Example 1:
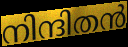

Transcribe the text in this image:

നിന്ദിതൻ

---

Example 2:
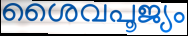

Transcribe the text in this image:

ശൈവപൂജ്യം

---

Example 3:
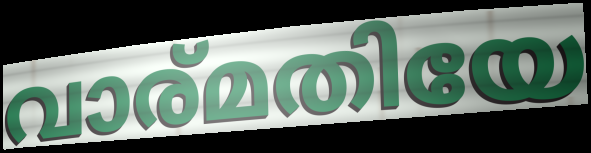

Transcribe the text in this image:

വാര്മതിയേ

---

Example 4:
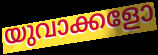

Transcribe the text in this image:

യുവാക്കളോ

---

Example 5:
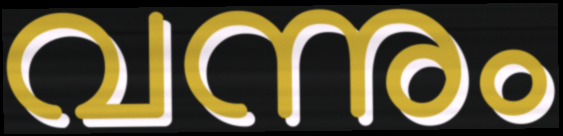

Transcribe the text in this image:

വന്നും